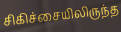
சிகிச்சையிலிருந்த